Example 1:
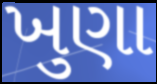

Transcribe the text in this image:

ખુણા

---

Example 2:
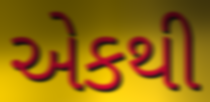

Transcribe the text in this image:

એકથી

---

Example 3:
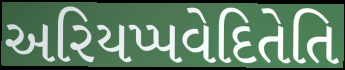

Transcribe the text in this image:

અરિયપ્પવેદિતેતિ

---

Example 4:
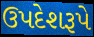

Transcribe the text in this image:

ઉપદેશરૂપે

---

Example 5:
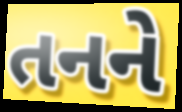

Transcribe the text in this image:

તનને